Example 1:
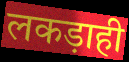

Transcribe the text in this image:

लकड़ाही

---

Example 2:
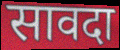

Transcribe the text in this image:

सावदा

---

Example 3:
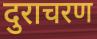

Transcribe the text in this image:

दुराचरण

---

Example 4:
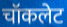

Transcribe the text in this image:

चॉकलेट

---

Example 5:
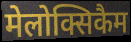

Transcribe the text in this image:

मेलोक्सिकैम